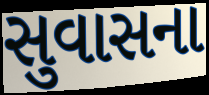
સુવાસના